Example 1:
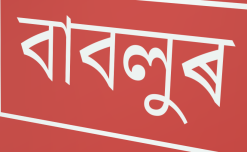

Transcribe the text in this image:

বাবলুৰ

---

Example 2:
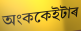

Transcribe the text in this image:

অংককেইটাৰ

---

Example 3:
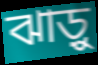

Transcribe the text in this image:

ঝাড়ু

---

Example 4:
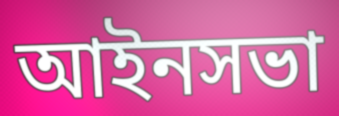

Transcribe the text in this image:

আইনসভা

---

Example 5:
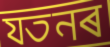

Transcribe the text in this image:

যতনৰ